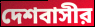
দেশবাসীর